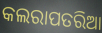
କଲରାପତରିଆ